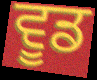
ਵੂਡ